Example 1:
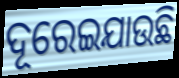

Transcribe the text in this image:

ଦୂରେଇଯାଉଛି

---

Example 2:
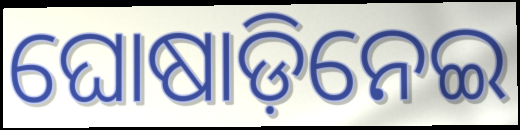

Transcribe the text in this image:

ଘୋଷାଡ଼ିନେଇ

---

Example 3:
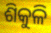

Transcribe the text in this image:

ଶିକୁଳି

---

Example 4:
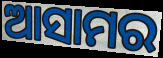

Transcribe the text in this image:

ଆସାମର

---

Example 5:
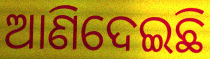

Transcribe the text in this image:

ଆଣିଦେଇଛି